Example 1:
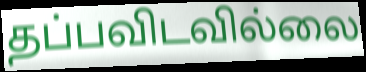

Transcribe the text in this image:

தப்பவிடவில்லை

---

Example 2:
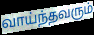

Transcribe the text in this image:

வாய்ந்தவரும்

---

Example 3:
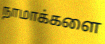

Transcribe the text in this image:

நாமாக்களை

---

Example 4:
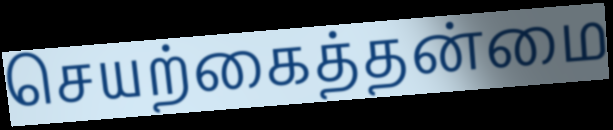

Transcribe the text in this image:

செயற்கைத்தன்மை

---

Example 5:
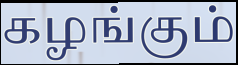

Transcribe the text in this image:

கழங்கும்